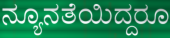
ನ್ಯೂನತೆಯಿದ್ದರೂ